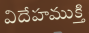
విదేహముక్తి